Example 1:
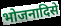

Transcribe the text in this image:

भोजनादिसे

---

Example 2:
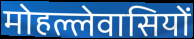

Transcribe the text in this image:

मोहल्लेवासियों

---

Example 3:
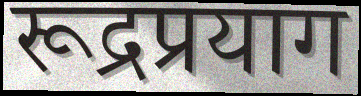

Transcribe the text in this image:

रूद्रप्रयाग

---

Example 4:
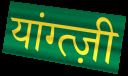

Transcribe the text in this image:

यांग्त्ज़ी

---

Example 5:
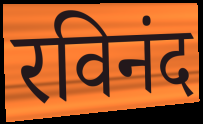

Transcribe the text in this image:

रविनंद